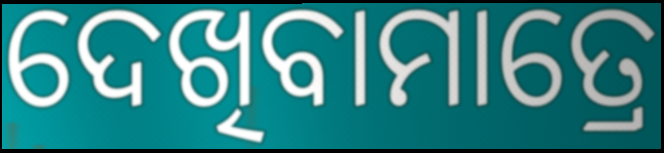
ଦେଖିବାମାତ୍ରେ